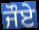
ਜੌਏ